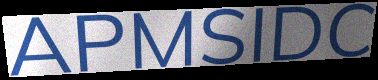
APMSIDC